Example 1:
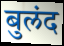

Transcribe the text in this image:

बुलंद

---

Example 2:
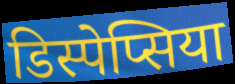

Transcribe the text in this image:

डिस्पेप्सिया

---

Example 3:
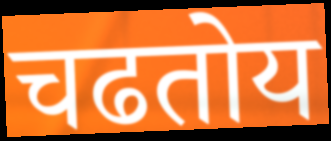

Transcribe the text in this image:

चढतोय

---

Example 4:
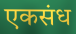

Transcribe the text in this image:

एकसंध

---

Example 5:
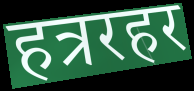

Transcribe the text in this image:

हत्ररहर